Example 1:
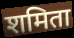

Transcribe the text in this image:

शमिता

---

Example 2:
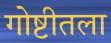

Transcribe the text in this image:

गोष्टीतला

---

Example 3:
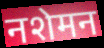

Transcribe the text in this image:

नशेमन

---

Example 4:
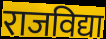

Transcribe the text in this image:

राजविद्या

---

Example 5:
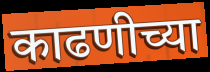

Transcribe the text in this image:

काढणीच्या